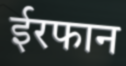
ईरफान